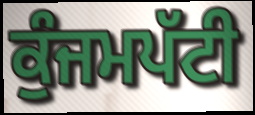
ਕੁੰਜਮਪੱਟੀ